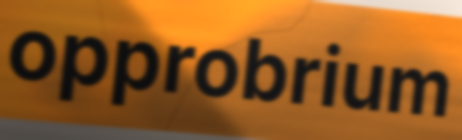
opprobrium